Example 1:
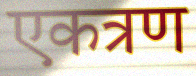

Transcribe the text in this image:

एकत्रण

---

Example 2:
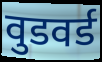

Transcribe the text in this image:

वुडवर्ड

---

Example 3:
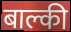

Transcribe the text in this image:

बाल्‍की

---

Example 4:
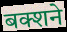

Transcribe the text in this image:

बक्शने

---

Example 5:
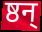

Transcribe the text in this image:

ष्ठन्